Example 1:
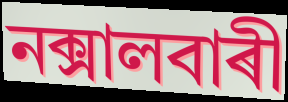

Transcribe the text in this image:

নক্সালবাৰী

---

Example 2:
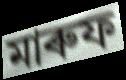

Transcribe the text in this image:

মাৰুফ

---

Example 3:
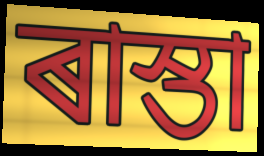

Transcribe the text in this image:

ৰাস্তা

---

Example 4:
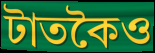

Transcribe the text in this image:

টাতকৈও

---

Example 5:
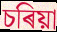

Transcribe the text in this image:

চৰিয়া